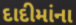
દાદીમાંના